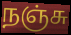
நஞ்சு